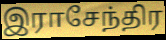
இராசேந்திர